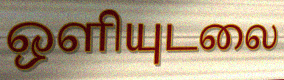
ஒளியுடலை